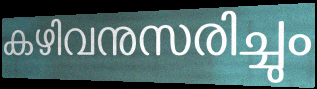
കഴിവനുസരിച്ചും